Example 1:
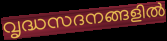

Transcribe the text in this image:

വൃദ്ധസദനങ്ങളിൽ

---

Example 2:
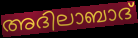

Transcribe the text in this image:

അദിലാബാദ്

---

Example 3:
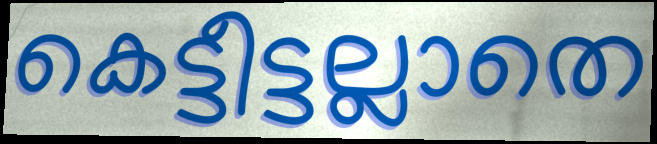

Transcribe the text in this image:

കെട്ടീട്ടല്ലാതെ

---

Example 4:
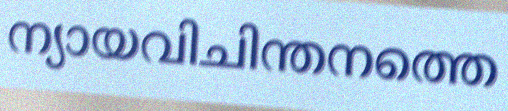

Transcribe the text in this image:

ന്യായവിചിന്തനത്തെ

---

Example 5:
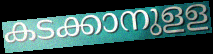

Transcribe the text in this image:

കടക്കാനുളള